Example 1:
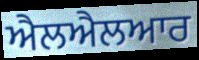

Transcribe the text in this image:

ਐਲਐਲਆਰ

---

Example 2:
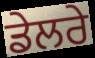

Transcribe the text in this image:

ਡੇਲਰੇ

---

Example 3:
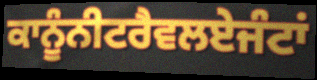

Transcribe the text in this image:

ਕਾਨੂੰਨੀਟਰੈਵਲਏਜੰਟਾਂ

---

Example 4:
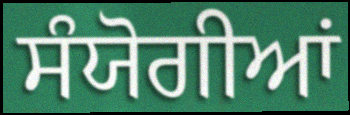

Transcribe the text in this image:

ਸੰਯੋਗੀਆਂ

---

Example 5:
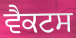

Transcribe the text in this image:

ਵੈਕਟਸ